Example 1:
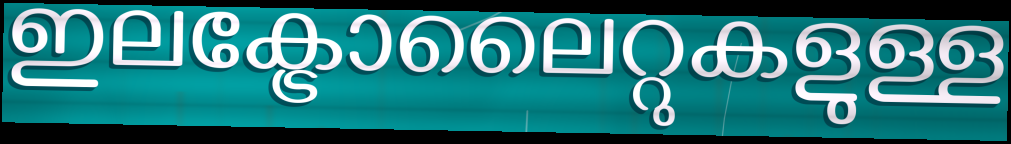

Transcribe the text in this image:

ഇലക്ട്രോലൈറ്റുകളുള്ള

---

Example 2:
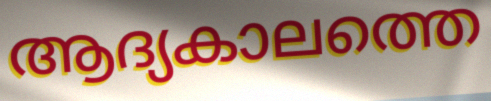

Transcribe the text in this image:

ആദ്യകാലത്തെ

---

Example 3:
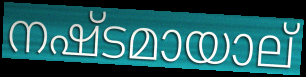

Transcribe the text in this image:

നഷ്ടമായാല്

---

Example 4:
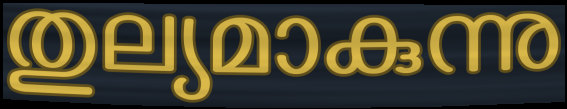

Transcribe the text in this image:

തുല്യമാകുന്നു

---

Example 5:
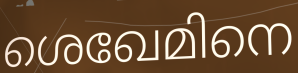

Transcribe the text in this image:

ശെഖേമിനെ